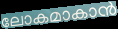
ലോകമാകാൻ